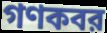
গণকবর